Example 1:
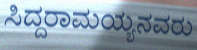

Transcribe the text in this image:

ಸಿದ್ದರಾಮಯ್ಯನವರು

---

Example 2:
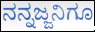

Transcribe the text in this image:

ನನ್ನಜ್ಜನಿಗೂ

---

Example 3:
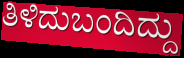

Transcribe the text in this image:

ತಿಳಿದುಬಂದಿದ್ದು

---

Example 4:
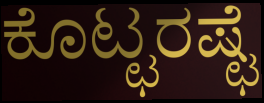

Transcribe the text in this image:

ಕೊಟ್ಟರಷ್ಟೆ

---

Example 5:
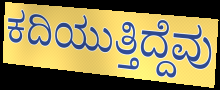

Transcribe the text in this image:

ಕದಿಯುತ್ತಿದ್ದೆವು